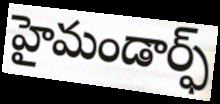
హైమండార్ఫ్